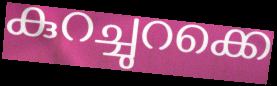
കുറച്ചുറക്കെ